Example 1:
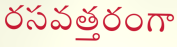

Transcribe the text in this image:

రసవత్తరంగా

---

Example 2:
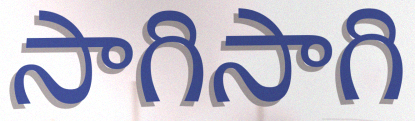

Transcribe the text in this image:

సాగిసాగి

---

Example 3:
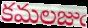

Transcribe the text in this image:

కమలజుఁ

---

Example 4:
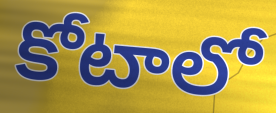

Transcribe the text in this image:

కోటాలో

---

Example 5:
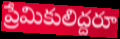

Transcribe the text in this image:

ప్రేమికులిద్దరూ